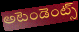
అటెండెంట్స్